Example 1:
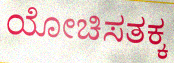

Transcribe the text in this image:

ಯೋಚಿಸತಕ್ಕ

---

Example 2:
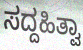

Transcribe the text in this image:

ಸದ್ದಹಿತ್ವಾ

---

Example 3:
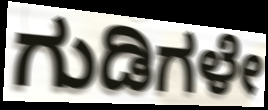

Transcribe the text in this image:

ಗುಡಿಗಳೇ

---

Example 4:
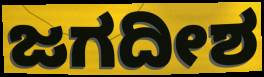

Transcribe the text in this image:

ಜಗದೀಶ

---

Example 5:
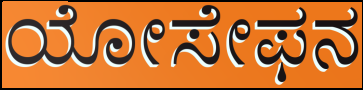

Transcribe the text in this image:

ಯೋಸೇಫನ